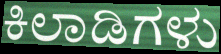
ಕಿಲಾಡಿಗಳು